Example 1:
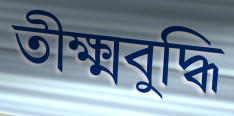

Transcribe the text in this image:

তীক্ষ্মবুদ্ধি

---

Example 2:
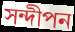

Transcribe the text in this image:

সন্দীপন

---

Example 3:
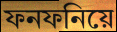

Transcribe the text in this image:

ফনফনিয়ে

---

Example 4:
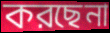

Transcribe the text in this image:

করছেনা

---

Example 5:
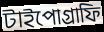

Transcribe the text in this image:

টাইপোগ্রাফি